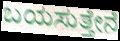
ಬಯಸುತ್ತೇನೆ